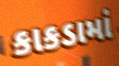
કાકડામાં